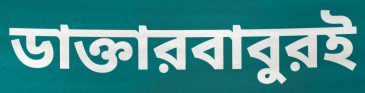
ডাক্তারবাবুরই